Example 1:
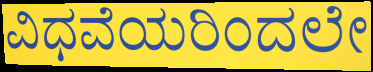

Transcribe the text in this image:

ವಿಧವೆಯರಿಂದಲೇ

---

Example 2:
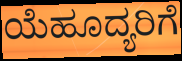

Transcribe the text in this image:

ಯೆಹೂದ್ಯರಿಗೆ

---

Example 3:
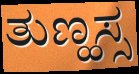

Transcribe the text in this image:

ತುಣ್ಹಸ್ಸ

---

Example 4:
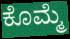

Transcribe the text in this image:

ಕೊಮ್ಮೆ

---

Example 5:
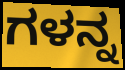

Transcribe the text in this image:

ಗಳನ್ನ